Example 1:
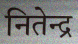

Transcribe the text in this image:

नितेन्द्र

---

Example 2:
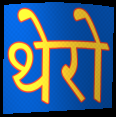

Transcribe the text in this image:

थेरो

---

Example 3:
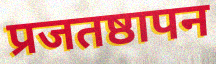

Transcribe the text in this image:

प्रजतष्ठापन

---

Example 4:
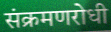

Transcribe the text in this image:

संक्रमणरोधी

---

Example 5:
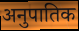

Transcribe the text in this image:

अनुपातिक